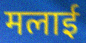
मलाई